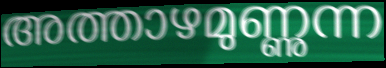
അത്താഴമുണ്ണുന്ന